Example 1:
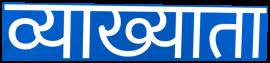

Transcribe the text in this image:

व्‍याख्‍याता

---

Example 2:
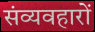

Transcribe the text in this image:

संव्‍यवहारों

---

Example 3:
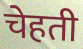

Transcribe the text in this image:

चेहती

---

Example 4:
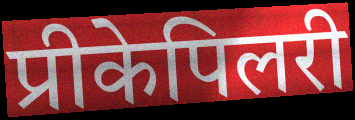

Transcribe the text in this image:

प्रीकेपिलरी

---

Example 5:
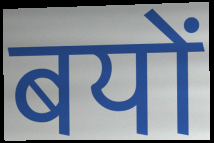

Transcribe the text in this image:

बयों